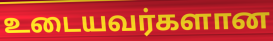
உடையவர்களான